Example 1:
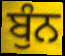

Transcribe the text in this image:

ਬੁੰਨ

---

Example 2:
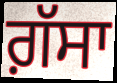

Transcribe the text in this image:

ਗ਼ੱਸਾ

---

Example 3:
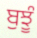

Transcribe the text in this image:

ਬੁਝੂੰ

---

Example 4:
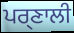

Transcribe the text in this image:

ਪਰ੍ਣਾਲੀ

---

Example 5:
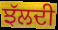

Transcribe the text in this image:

ਝੱਲਦੀ